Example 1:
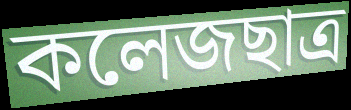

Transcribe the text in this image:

কলেজছাত্র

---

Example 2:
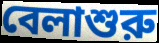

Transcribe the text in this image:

বেলাশুরু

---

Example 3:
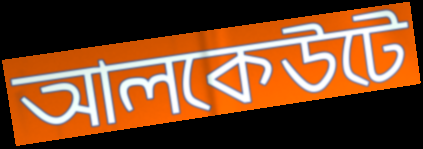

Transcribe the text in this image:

আলকেউটে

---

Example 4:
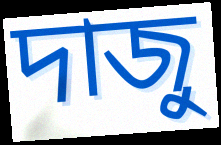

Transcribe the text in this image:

দাজু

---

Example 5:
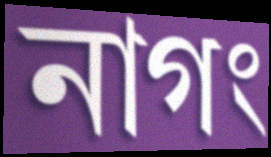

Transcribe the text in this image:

নাগং